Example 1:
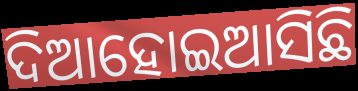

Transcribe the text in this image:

ଦିଆହୋଇଆସିଛି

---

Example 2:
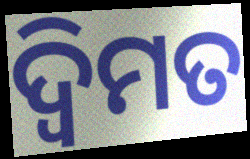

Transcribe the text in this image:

ଦ୍ୱିମତ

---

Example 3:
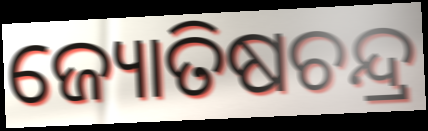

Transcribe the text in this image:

ଜ୍ୟୋତିଷଚନ୍ଦ୍ର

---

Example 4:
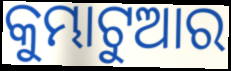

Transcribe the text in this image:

କୁମ୍ଭାଟୁଆର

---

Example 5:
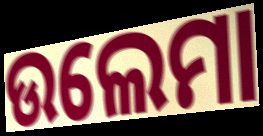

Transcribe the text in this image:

ଉଲେମା